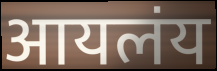
आयलंय